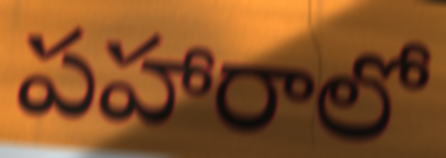
పహారాలో